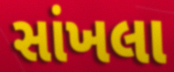
સાંખલા